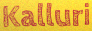
Kalluri